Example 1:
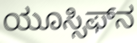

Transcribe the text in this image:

ಯೂಸ್ಸಿಫ್‌ನ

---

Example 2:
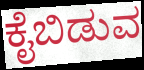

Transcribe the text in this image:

ಕೈಬಿಡುವ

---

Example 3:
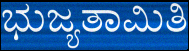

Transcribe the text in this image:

ಭುಜ್ಯತಾಮಿತಿ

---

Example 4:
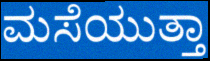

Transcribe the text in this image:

ಮಸೆಯುತ್ತಾ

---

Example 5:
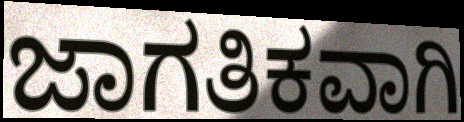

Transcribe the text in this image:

ಜಾಗತಿಕವಾಗಿ